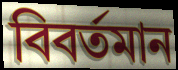
বিবর্তমান